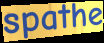
spathe